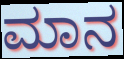
ಮಾನ